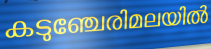
കടുഞ്ചേരിമലയിൽ